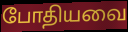
போதியவை